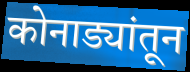
कोनाड्यांतून